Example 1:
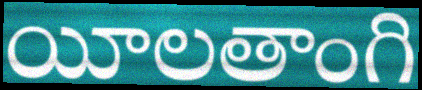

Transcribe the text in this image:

యీలతాంగి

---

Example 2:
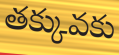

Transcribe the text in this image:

తక్కువకు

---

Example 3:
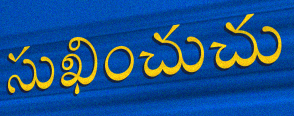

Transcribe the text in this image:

సుఖించుచు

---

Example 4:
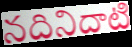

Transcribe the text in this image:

నదినిదాటి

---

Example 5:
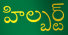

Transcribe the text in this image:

హిల్బర్ట్